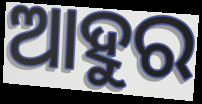
ଆହୁର